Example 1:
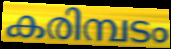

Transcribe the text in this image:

കരിമ്പടം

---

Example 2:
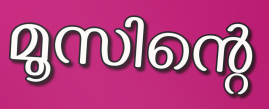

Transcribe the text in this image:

മൂസിന്റെ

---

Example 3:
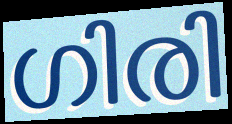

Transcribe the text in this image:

ഗിരി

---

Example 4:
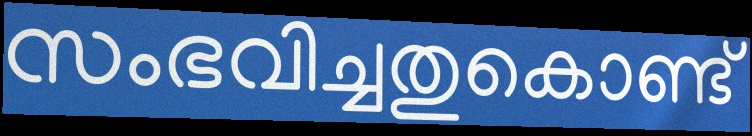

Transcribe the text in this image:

സംഭവിച്ചതുകൊണ്ട്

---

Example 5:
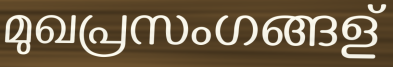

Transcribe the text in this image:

മുഖപ്രസംഗങ്ങള്